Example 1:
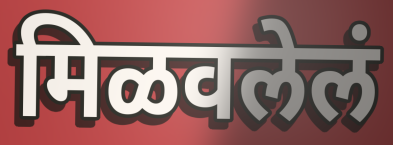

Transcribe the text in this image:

मिळवलेलं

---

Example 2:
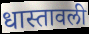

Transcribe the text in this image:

धास्तावली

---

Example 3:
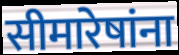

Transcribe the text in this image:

सीमारेषांना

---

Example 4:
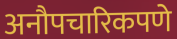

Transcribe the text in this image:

अनौपचारिकपणे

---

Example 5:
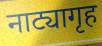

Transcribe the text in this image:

नाट्यागृह